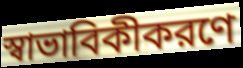
স্বাভাবিকীকরণে